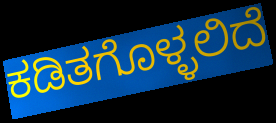
ಕಡಿತಗೊಳ್ಳಲಿದೆ